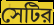
সেটির